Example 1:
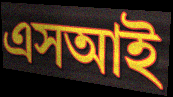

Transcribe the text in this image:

এসআই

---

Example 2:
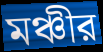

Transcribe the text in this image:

মঞ্চীর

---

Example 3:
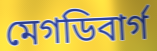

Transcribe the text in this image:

মেগডিবার্গ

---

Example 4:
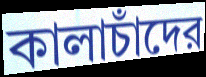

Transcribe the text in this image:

কালাচাঁদের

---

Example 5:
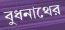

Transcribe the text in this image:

বুধনাথের